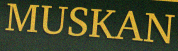
MUSKAN